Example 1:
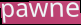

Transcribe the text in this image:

pawne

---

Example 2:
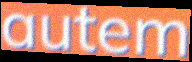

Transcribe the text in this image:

autem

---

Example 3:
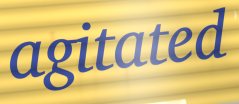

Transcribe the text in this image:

agitated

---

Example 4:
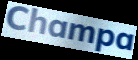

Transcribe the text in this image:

Champa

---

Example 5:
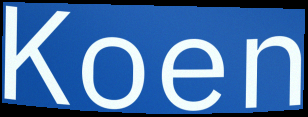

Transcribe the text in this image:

Koen